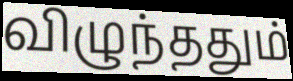
விழுந்ததும்